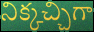
నిక్కచ్చిగా